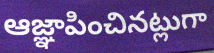
ఆజ్ఞాపించినట్లుగా